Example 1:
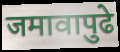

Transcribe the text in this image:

जमावापुढे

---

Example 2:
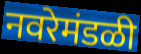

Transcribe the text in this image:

नवरेमंडळी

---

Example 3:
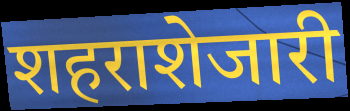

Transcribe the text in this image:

शहराशेजारी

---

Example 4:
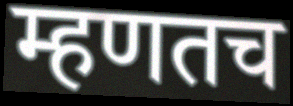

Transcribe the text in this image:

म्हणतच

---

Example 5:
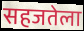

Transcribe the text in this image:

सहजतेला